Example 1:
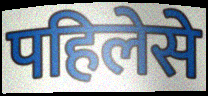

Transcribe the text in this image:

पहिलेसे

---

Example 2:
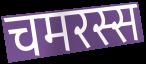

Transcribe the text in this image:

चमरस्स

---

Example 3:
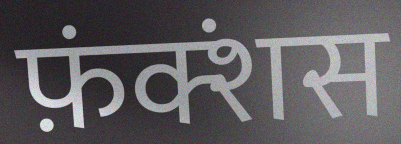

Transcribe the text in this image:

फ़ंक्शंस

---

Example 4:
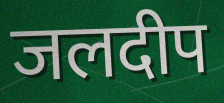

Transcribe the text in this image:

जलदीप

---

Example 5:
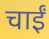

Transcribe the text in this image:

चाईं